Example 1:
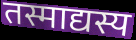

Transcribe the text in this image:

तस्माद्यस्य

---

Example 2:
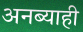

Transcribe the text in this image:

अनब्याही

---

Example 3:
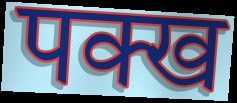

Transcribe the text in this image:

पक्ख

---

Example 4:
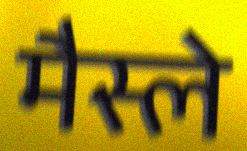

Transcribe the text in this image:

मैस्ले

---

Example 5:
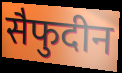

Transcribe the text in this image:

सैफुदीन